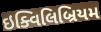
ઇક્વિલિબ્રિયમ